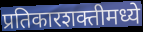
प्रतिकारशक्तीमध्ये